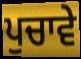
ਪੁਚਾਵੇ